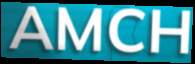
AMCH